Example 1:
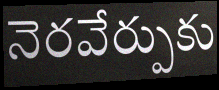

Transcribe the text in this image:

నెరవేర్పుకు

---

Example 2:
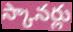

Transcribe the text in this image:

స్కానర్లు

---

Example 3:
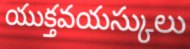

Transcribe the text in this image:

యుక్తవయస్కులు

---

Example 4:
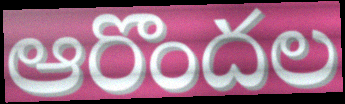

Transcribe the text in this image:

ఆరొందల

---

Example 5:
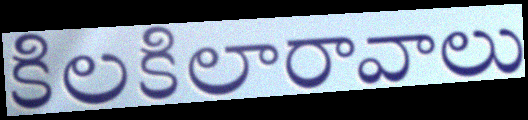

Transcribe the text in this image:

కిలకిలారావాలు